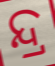
ନ୍ଦ୍ର